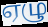
ஏழு